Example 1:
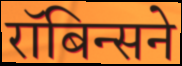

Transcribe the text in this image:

रॉबिन्सने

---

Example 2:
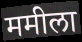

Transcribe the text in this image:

ममीला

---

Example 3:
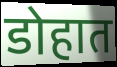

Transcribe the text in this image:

डोहात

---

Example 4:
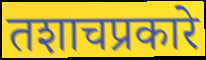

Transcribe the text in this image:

तशाचप्रकारे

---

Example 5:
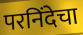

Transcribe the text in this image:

परनिंदेचा